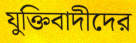
যুক্তিবাদীদের